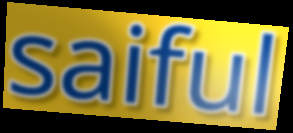
saiful